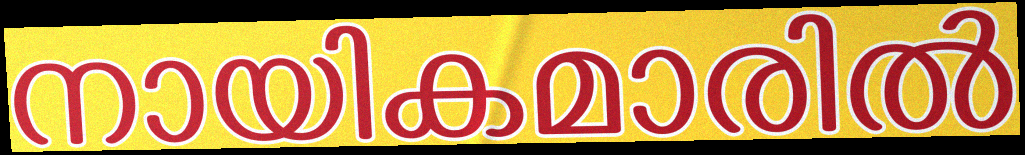
നായികമാരിൽ